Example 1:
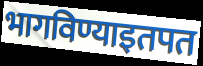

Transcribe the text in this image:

भागविण्याइतपत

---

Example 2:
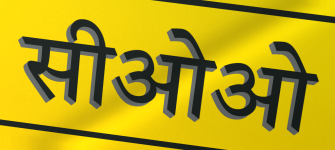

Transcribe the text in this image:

सीओओ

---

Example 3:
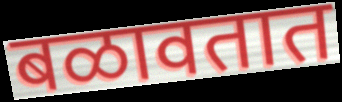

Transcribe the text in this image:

बळावतात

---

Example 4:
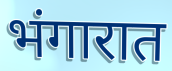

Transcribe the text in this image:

भंगारात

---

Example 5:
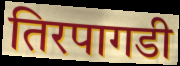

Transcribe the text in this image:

तिरपागडी